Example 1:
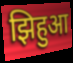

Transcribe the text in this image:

झिहुआ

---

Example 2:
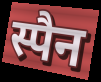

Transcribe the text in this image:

स्पैन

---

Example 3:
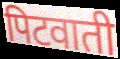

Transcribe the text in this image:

पिटवाती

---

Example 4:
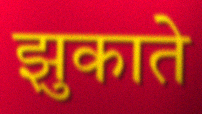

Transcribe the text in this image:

झुकाते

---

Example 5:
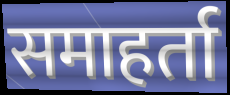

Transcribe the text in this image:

समाहर्ता